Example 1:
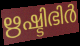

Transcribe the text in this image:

ഋഷ്ടിഭിർ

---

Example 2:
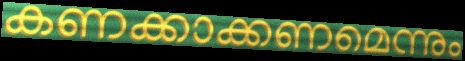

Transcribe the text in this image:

കണക്കാക്കണമെന്നും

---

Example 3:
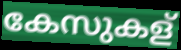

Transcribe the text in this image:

കേസുകള്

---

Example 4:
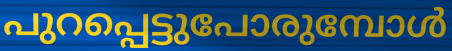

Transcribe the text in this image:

പുറപ്പെട്ടുപോരുമ്പോൾ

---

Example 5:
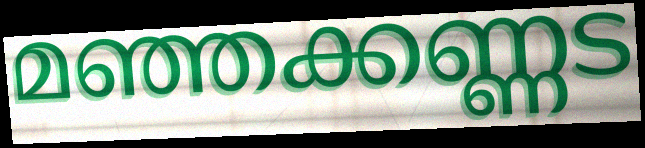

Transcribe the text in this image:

മഞ്ഞക്കണ്ണട